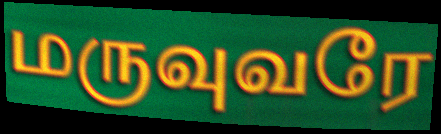
மருவுவரே